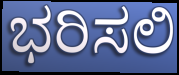
ಭರಿಸಲಿ